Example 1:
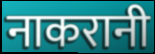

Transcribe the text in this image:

नाकरानी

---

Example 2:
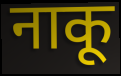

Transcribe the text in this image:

नाकू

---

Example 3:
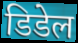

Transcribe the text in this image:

डिडेल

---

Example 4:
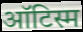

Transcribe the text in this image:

ऑटिस्म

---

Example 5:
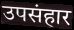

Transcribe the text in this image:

उपसंहार